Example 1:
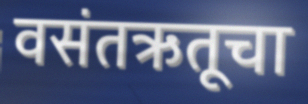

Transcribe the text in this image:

वसंतऋतूचा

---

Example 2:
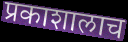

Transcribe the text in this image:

प्रकाशालाच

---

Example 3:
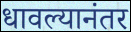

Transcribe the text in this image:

धावल्यानंतर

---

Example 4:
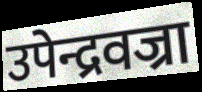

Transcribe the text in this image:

उपेन्द्रवज्रा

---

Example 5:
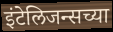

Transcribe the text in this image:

इंटेलिजन्सच्या